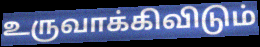
உருவாக்கிவிடும்